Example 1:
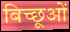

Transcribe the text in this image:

बिच्छूओं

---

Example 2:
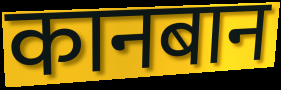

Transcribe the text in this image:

कानबान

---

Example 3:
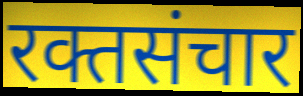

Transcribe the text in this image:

रक्तसंचार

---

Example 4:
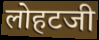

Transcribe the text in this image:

लोहटजी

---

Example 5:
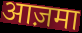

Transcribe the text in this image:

आज़मा